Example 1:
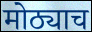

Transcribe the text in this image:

मोठ्याच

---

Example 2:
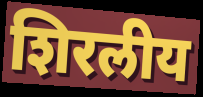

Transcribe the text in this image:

शिरलीय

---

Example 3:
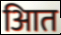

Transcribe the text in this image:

आित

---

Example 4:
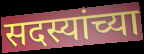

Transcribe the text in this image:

सदस्यांच्या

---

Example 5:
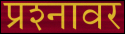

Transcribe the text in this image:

प्रश्नावर